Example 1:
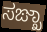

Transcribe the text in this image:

ಸಙ್ಖಾ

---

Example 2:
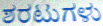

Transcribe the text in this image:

ಶರಟುಗಳು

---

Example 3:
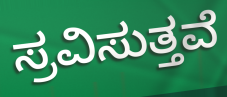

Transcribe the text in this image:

ಸ್ರವಿಸುತ್ತವೆ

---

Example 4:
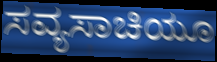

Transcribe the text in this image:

ಸವ್ಯಸಾಚಿಯೂ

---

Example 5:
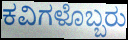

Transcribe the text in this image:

ಕವಿಗಳೊಬ್ಬರು